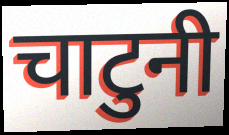
चाटुनी